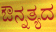
ಔನ್ನತ್ಯದ